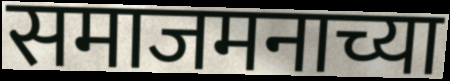
समाजमनाच्या